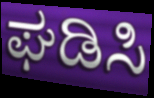
ಘಡಿಸಿ